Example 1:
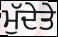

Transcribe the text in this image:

ਮੁੱਦੇਤੇ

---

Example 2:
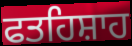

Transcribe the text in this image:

ਫਤਹਿਸ਼ਾਹ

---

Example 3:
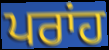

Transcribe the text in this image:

ਪਰਾਂਹ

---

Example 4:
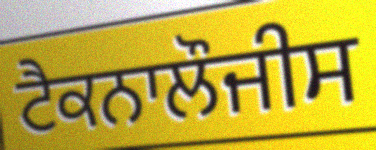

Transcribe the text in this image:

ਟੈਕਨਾਲੌਜੀਸ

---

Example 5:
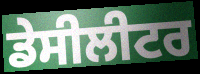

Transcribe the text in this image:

ਡੇਸੀਲੀਟਰ